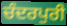
ਚੰਦਰਪੁਰੀ